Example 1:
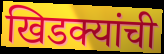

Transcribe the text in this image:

खिडक्यांची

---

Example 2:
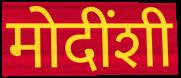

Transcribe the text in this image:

मोदींशी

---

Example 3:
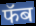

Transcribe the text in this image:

फॅब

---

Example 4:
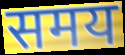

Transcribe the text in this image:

समय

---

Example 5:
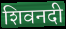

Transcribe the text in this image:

शिवनदी